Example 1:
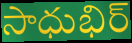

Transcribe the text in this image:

సాధుభిర్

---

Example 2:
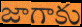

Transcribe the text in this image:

జాగాకు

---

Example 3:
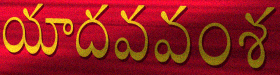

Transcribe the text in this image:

యాదవవంశ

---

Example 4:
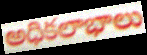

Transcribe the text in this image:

అధికలాభాలు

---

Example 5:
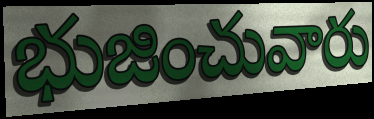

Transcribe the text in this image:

భుజించువారు